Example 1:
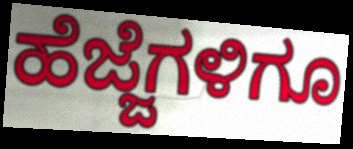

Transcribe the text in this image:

ಹೆಜ್ಜೆಗಳಿಗೂ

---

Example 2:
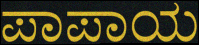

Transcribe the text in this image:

ಪಾಪಾಯ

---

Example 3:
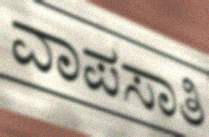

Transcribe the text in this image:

ವಾಪಸಾತಿ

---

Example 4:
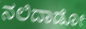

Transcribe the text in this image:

ನಲಿದಾಡೋ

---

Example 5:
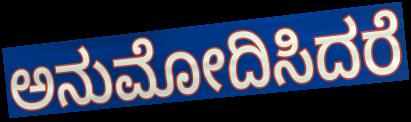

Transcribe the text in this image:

ಅನುಮೋದಿಸಿದರೆ